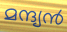
മന്ദ്യൻ